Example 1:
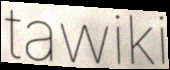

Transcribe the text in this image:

tawiki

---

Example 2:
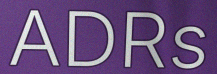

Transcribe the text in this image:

ADRs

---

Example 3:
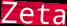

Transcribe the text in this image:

Zeta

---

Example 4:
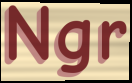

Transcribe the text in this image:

Ngr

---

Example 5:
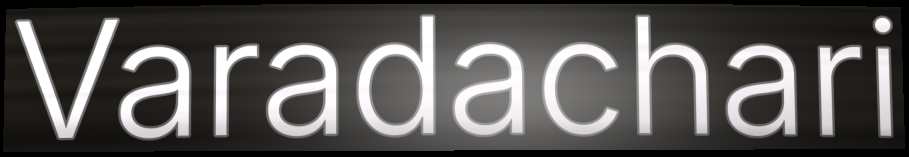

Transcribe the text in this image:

Varadachari